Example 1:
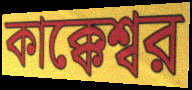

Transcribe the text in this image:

কাক্কেশ্বর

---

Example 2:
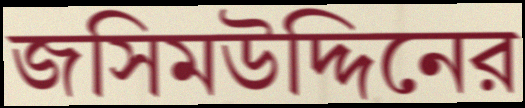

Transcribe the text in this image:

জসিমউদ্দিনের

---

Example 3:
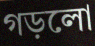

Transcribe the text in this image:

গড়লো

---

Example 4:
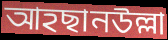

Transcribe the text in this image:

আহছানউল্লা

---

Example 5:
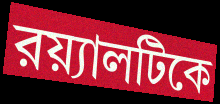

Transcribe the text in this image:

রয়্যালটিকে